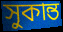
সুকান্ত